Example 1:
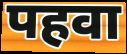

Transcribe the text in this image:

पहवा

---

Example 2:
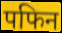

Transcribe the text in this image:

पफिन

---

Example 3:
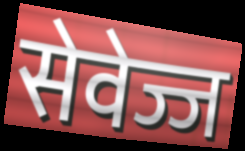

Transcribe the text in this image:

सेवेज्ज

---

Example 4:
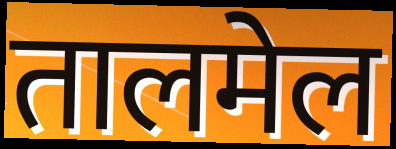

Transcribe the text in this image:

तालमेल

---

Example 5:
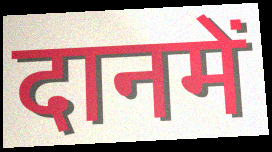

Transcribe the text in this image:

दानमें